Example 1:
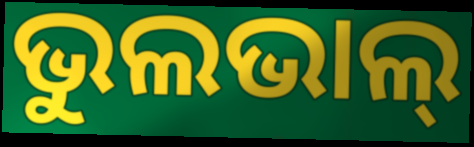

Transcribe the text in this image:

ଭୁଲଭାଲ୍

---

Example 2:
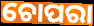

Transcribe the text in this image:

ଚୋପରା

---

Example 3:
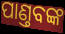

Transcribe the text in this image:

ପାଣ୍ତବଙ୍କ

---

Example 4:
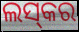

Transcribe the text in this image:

ଲସ୍‌କର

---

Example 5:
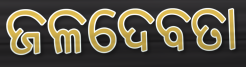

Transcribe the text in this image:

ଜଳଦେବତା